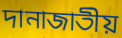
দানাজাতীয়